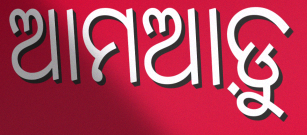
ଆମଆଡ଼ୁ